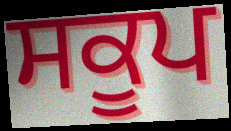
ਸਕੂਪ